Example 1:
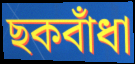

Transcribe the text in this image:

ছকবাঁধা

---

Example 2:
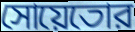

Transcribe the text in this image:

সোয়েতোর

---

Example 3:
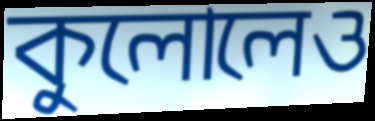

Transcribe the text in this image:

কুলোলেও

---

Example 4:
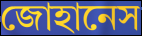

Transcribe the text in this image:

জোহানেস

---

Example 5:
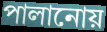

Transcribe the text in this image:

পালানোয়